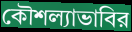
কৌশল্যাভাবির